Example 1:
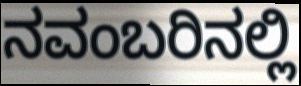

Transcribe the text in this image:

ನವಂಬರಿನಲ್ಲಿ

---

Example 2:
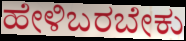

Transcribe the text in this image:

ಹೇಳಿಬರಬೇಕು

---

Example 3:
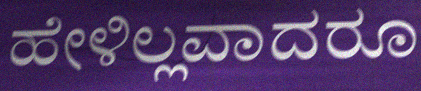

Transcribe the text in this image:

ಹೇಳಿಲ್ಲವಾದರೂ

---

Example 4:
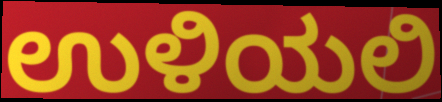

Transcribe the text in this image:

ಉಳಿಯಲಿ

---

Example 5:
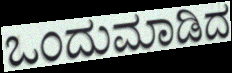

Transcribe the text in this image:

ಒಂದುಮಾಡಿದ